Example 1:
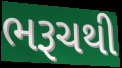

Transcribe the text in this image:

ભરૂચથી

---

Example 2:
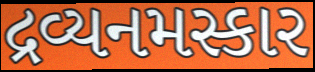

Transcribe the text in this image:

દ્રવ્યનમસ્કાર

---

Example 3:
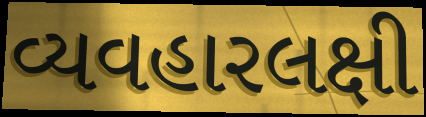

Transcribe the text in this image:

વ્યવહારલક્ષી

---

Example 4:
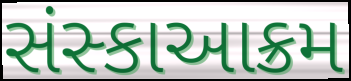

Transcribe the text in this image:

સંસ્કાઆક્રમ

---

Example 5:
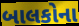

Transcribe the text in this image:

બાલકોના